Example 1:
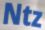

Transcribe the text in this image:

Ntz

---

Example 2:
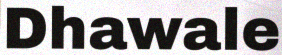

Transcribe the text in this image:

Dhawale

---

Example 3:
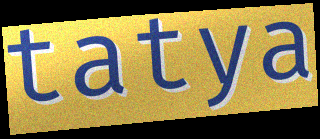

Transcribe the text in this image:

tatya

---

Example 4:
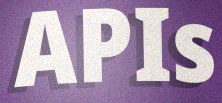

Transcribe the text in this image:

APIs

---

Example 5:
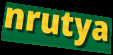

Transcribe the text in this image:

nrutya